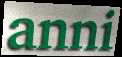
anni